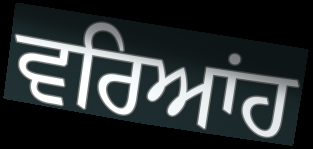
ਵਰਿਆਂਹ